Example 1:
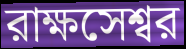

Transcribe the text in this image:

রাক্ষসেশ্বর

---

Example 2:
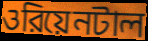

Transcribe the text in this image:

ওরিয়েনটাল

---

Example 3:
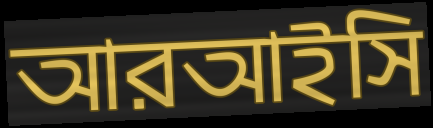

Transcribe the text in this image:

আরআইসি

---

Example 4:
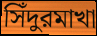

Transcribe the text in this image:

সিঁদুরমাখা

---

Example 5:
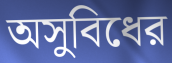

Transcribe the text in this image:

অসুবিধের